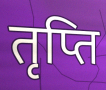
तृप्ति